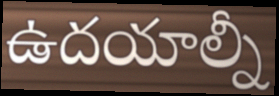
ఉదయాల్నీ